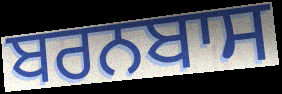
ਬਰਨਬਾਸ